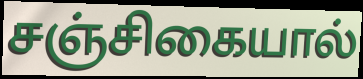
சஞ்சிகையால்